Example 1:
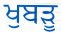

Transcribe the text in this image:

ਖੁਬੜੂ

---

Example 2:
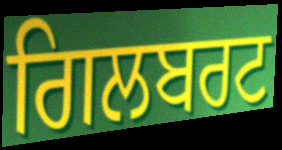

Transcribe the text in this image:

ਗਿਲਬਰਟ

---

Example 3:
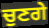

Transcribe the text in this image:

ਚੁਣਗੇ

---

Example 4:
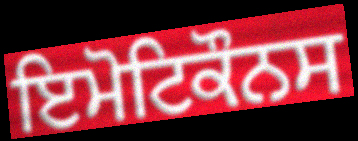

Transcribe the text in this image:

ਇਮੋਟਿਕੌਨਸ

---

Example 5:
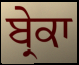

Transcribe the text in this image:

ਬ੍ਰੇਕਾ